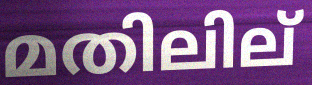
മതിലില്